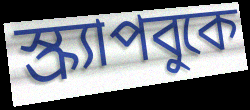
স্ক্র্যাপবুকে